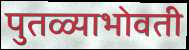
पुतळ्याभोवती